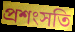
প্রশংসতি